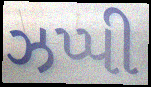
ઝપ્પી